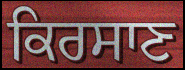
ਕਿਰਸਾਣ